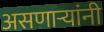
असणाऱ्यांनी